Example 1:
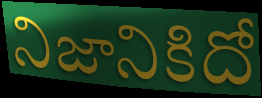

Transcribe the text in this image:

నిజానికిదో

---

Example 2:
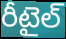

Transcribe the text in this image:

రీటైల్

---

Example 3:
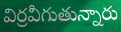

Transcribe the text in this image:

విర్రవీగుతున్నారు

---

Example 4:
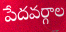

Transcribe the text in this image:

పేదవర్గాల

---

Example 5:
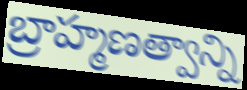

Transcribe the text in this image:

బ్రాహ్మణత్వాన్ని